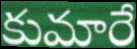
కుమారే